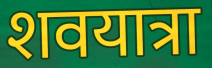
शवयात्रा